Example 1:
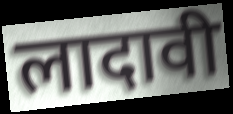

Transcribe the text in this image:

लादावी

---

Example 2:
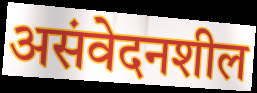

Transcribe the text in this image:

असंवेदनशील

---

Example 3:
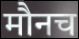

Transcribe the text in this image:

मौनच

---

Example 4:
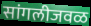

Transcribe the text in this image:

सांगलीजवळ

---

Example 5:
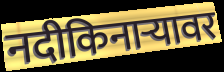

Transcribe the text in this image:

नदीकिनाऱ्यावर